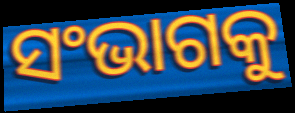
ସଂଭାଗକୁ